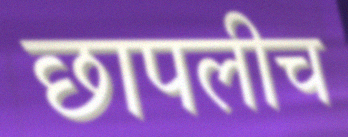
छापलीच